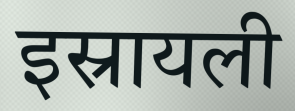
इस्रायली